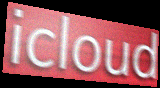
icloud